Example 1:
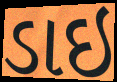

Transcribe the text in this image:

ડાઇ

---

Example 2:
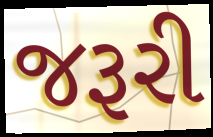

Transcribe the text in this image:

જરૂરી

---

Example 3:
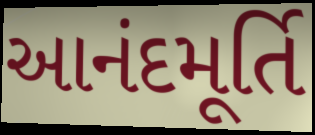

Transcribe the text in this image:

આનંદમૂર્તિ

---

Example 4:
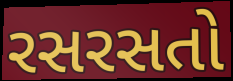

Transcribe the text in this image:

રસરસતો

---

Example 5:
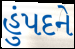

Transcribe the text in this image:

હુંપદને